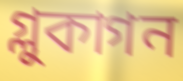
গ্লুকাগন